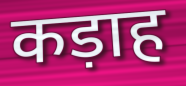
कड़ाह